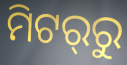
ମିଟର୍‍ରୁ